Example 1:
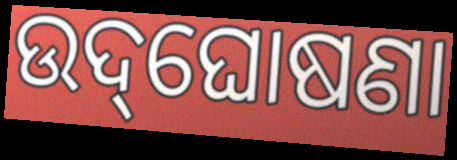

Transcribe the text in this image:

ଉଦ୍‌ଘୋଷଣା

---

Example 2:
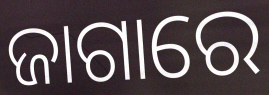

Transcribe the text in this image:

ଜାଗାରେ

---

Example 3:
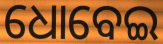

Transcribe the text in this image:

ଧୋବେଇ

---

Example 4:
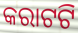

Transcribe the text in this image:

କରାଟଟି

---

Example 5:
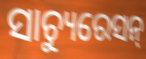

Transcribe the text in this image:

ସାଚ୍ୟୁରେସନ୍